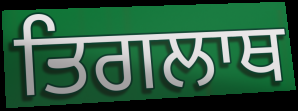
ਤਿਗਲਾਥ